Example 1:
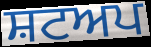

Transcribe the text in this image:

ਸ਼ਟਅਪ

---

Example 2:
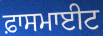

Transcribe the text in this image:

ਫ਼ਾਸਮਾਈਟ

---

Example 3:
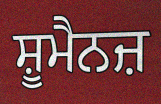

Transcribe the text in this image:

ਸ਼ੂਮੈਨਜ਼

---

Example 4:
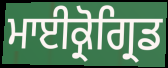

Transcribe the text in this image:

ਮਾਈਕ੍ਰੋਗ੍ਰਿਡ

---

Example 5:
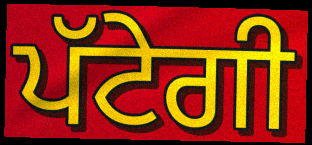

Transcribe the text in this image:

ਪੱਟੇਗੀ